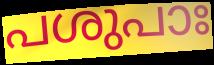
പശുപാഃ